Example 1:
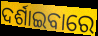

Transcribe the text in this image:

ଦର୍ଶାଇବାରେ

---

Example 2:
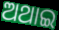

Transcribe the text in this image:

ଅଥାଇ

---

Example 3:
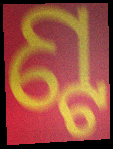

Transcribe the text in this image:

ଣ୍ଟ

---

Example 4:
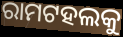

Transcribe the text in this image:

ରାମଟହଲକୁ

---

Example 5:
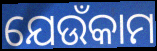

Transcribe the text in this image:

ଯେଉଁକାମ